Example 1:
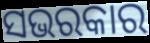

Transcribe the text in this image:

ସଭରକାର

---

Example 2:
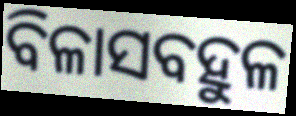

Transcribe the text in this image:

ବିଳାସବହୁଳ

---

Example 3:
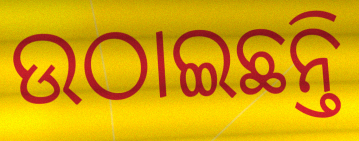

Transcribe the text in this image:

ଉଠାଇଛନ୍ତି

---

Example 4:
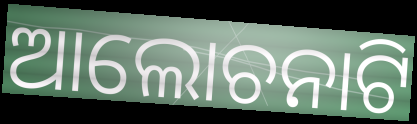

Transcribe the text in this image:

ଆଲୋଚନାଟି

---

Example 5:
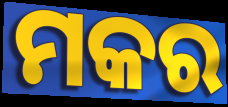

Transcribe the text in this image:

ମକର